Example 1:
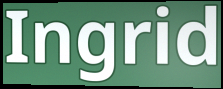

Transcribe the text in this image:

Ingrid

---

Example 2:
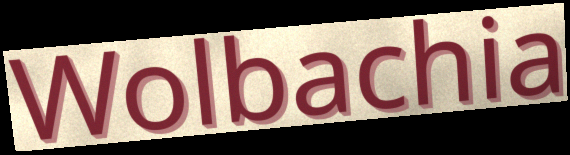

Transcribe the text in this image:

Wolbachia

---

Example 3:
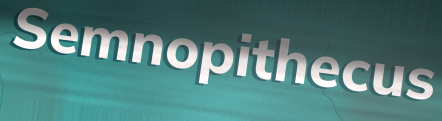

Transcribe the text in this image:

Semnopithecus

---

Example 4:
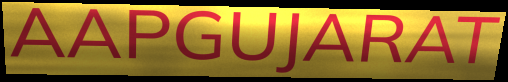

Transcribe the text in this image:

AAPGUJARAT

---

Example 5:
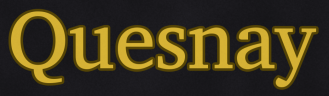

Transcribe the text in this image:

Quesnay